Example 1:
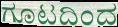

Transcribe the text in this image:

ಗೂಟದಿಂದ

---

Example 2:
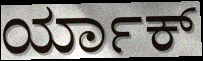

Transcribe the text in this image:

ರ್ಯಾಕ್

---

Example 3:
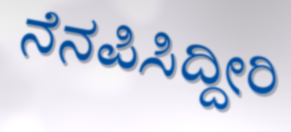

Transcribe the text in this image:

ನೆನಪಿಸಿದ್ದೀರಿ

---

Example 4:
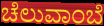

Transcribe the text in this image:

ಚೆಲುವಾಂಬೆ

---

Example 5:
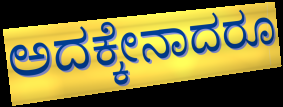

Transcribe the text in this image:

ಅದಕ್ಕೇನಾದರೂ